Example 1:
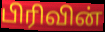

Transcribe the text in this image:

பிரிவின்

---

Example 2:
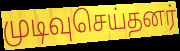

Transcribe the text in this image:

முடிவுசெய்தனர்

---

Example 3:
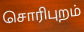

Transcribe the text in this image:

சொரிபுறம்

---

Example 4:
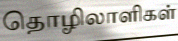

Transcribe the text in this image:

தொழிலாளிகள்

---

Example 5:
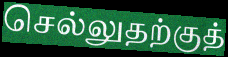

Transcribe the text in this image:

செல்லுதற்குத்